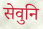
सेवुनि